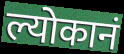
ल्योकानं